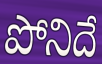
పోనిదే